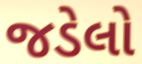
જડેલો